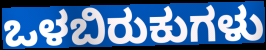
ಒಳಬಿರುಕುಗಳು